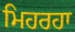
ਮਿਹਰਹਾ